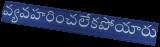
వ్యవహరించలేకపోయారు